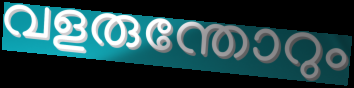
വളരുന്തോറും